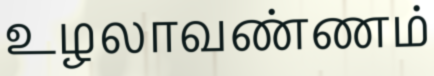
உழலாவண்ணம்